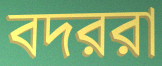
বদররা